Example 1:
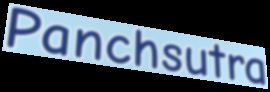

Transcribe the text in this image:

Panchsutra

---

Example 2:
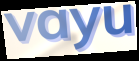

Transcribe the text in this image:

vayu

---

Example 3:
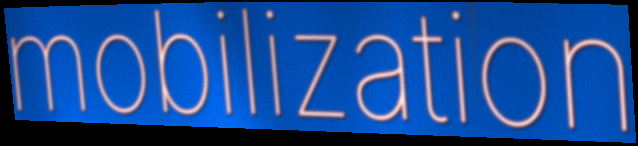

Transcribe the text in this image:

mobilization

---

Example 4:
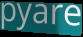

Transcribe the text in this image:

pyare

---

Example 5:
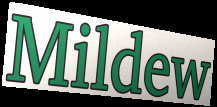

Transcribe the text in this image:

Mildew